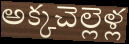
అక్కచెల్లెళ్ల